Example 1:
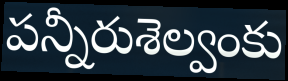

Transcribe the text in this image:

పన్నీరుశెల్వంకు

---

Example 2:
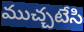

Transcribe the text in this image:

ముచ్చటేసి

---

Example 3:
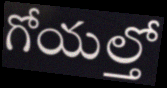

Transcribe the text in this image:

గోయల్తో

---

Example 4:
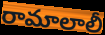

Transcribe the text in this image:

రామాలాలీ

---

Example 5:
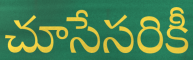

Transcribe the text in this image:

చూసేసరికీ